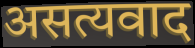
असत्यवाद